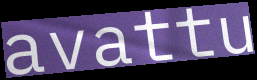
avattu